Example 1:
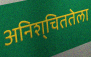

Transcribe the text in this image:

अनिश्चिततेला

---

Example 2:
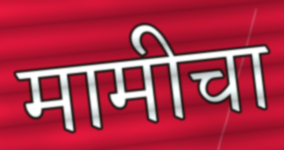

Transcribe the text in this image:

मामीचा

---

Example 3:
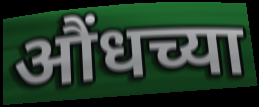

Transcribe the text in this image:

औंधच्या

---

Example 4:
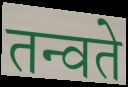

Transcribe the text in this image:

तन्वते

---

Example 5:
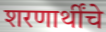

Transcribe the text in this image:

शरणार्थींचे